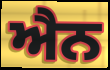
ਐਨ